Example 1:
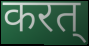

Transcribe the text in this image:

करत्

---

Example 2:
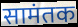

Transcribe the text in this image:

सामंतक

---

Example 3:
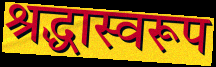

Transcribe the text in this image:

श्रद्धास्वरूप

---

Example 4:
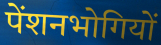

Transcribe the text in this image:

पेंशनभोगियों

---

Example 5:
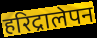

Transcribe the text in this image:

हरिद्रालेपन